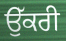
ਉੱਕਰੀ